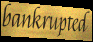
bankrupted